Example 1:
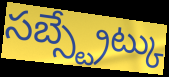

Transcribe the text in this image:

సబ్స్ట్రేట్కు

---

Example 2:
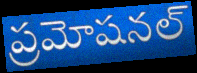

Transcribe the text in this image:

ప్రమోషనల్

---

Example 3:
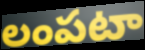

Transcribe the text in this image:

లంపటా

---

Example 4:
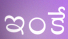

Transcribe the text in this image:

ఇంకే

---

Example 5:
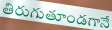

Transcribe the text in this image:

తిరుగుతూండగానే